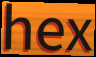
hex